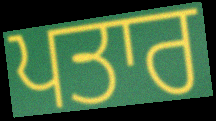
ਪਤਾਰ